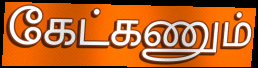
கேட்கணும்